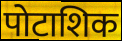
पोटाशिक